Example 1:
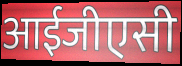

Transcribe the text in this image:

आईजीएसी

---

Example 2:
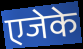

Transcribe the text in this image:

एजेके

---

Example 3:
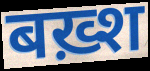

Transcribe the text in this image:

बख़्श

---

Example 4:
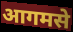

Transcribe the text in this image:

आगमसे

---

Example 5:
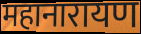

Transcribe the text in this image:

महानारायण